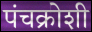
पंचक्रोशी